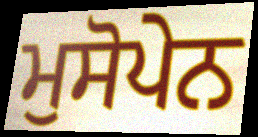
ਮੁਸੋਪੇਨ